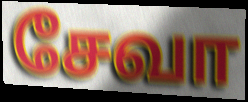
சேவா